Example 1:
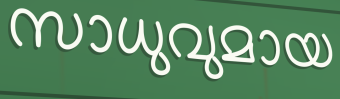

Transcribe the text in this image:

സാധുവുമായ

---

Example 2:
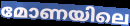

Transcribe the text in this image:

മോണയിലെ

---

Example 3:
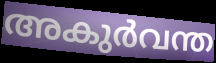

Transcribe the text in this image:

അകുർവന്ത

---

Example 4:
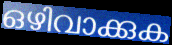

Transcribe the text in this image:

ഒഴിവാക്കുക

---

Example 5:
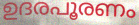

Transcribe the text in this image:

ഉദരപൂരണം